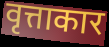
वृत्ताकार